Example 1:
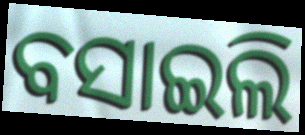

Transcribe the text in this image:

ବସାଇଲି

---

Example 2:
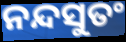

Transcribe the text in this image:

ନନ୍ଦସୁତଂ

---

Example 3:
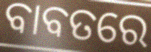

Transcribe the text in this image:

ବାବତରେ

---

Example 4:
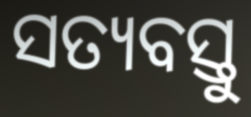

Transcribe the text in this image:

ସତ୍ୟବସ୍ତୁ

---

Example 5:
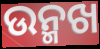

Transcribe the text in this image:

ଉନ୍ମଖ